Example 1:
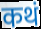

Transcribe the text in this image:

कथं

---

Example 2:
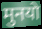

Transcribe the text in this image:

मुनयो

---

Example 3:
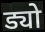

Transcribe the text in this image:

ड्यो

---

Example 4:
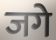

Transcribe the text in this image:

जगे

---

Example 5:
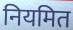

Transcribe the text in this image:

नियमित